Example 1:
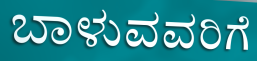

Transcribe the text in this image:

ಬಾಳುವವರಿಗೆ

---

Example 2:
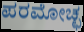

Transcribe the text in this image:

ಪರಮೋಚ್ಛ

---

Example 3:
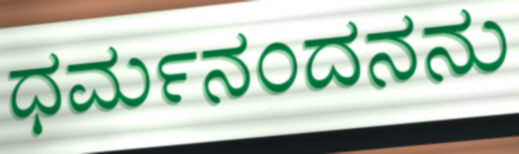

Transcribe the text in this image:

ಧರ್ಮನಂದನನು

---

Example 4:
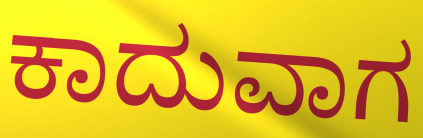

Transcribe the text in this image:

ಕಾದುವಾಗ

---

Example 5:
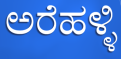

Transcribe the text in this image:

ಅರೆಹಳ್ಳಿ